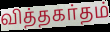
வித்தகர்தம்